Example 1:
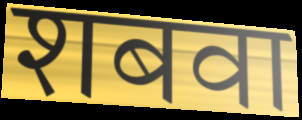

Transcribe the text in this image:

शबवा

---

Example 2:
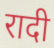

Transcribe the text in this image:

रादी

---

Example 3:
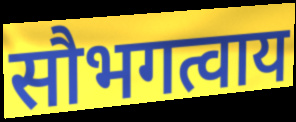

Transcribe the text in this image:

सौभगत्वाय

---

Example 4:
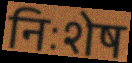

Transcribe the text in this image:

निःशेष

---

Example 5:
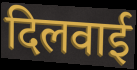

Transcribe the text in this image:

दिलवाई